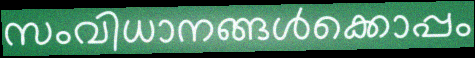
സംവിധാനങ്ങൾക്കൊപ്പം